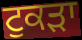
ਟੁਕਡ਼ਾ